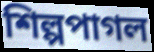
শিল্পপাগল